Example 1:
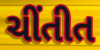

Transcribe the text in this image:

ચીંતીત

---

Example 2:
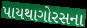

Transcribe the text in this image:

પાયથાગોરસના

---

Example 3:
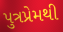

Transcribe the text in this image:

પુત્રપ્રેમથી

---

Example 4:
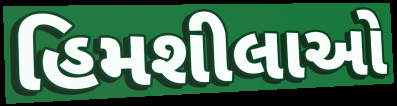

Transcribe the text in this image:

હિમશીલાઓ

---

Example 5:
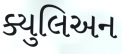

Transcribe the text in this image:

ક્યુલિઅન